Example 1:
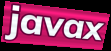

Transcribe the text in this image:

javax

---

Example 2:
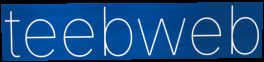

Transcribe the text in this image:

teebweb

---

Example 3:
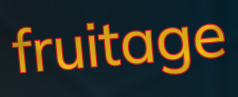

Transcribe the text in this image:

fruitage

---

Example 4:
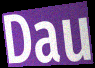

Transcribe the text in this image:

Dau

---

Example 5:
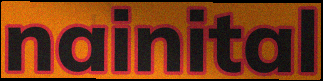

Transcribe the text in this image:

nainital